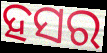
ହସର